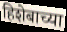
हिशेबाच्या